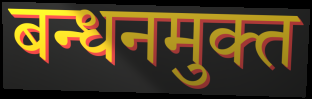
बन्धनमुक्त